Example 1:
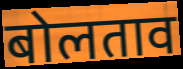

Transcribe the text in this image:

बोलताव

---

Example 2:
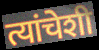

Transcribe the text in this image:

त्यांचेशी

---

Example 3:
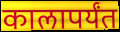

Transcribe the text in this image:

कालापर्यंत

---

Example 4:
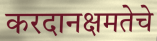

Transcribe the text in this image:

करदानक्षमतेचे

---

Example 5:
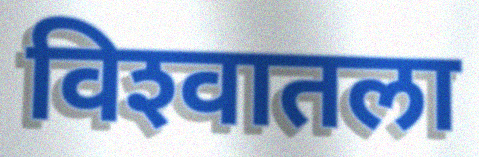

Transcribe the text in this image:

विश्‍वातला